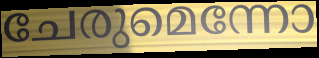
ചേരുമെന്നോ